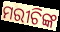
ମରୀଚିଙ୍କ